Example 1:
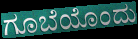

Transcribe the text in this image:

ಗೂಬೆಯೊಂದು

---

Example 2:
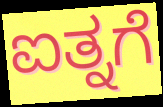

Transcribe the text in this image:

ಐತ್ನಗೆ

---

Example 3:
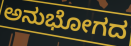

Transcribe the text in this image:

ಅನುಭೋಗದ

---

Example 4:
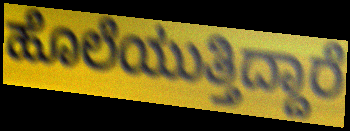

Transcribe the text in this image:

ಹೊಲೆಯುತ್ತಿದ್ದಾರೆ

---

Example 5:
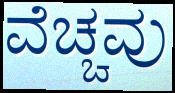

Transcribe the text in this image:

ವೆಚ್ಚವು